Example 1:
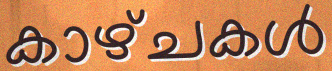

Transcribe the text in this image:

കാഴ്‌ചകൾ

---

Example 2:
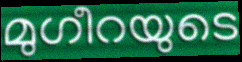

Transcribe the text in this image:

മുഗീറയുടെ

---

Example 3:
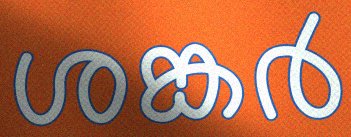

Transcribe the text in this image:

ശങ്കർ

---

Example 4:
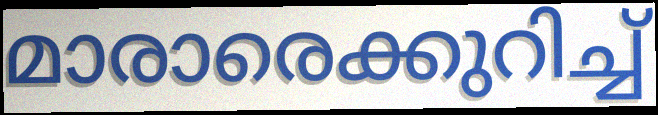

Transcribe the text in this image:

മാരാരെക്കുറിച്ച്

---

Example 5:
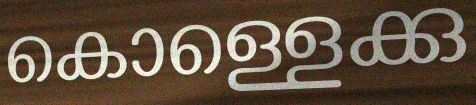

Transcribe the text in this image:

കൊള്ളെക്കു